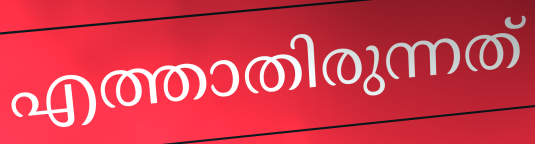
എത്താതിരുന്നത്